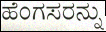
ಹೆಂಗಸರನ್ನು